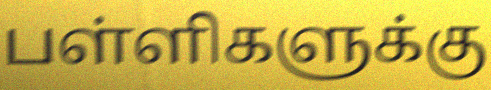
பள்ளிகளுக்கு